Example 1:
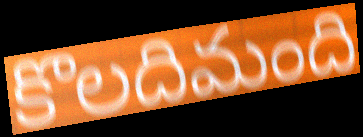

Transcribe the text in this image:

కొలదిమంది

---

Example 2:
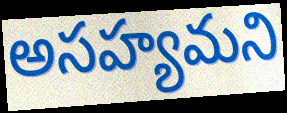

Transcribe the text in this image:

అసహ్యమని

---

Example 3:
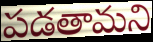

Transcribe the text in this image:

పడతామని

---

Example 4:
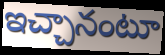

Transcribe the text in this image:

ఇచ్చానంటూ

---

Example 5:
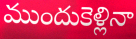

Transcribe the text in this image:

ముందుకెళ్లినా